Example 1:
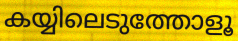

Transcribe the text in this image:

കയ്യിലെടുത്തോളൂ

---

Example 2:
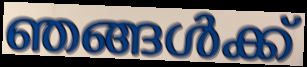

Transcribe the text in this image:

ഞങ്ങൾക്ക്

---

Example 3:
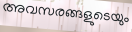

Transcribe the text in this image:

അവസരങ്ങളുടെയും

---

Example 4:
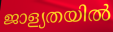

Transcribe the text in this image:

ജാള്യതയിൽ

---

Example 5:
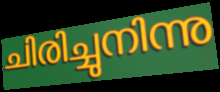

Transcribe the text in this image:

ചിരിച്ചുനിന്നു